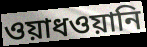
ওয়াধওয়ানি